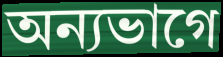
অন্যভাগে